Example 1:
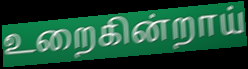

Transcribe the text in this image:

உறைகின்றாய்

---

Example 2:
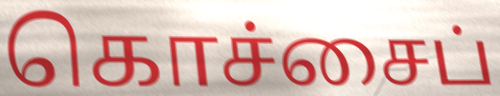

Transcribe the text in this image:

கொச்சைப்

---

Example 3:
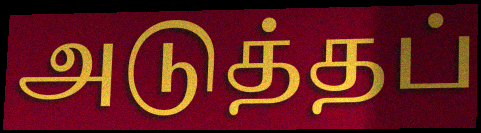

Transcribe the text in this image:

அடுத்தப்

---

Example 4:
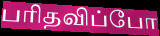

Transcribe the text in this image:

பரிதவிப்போ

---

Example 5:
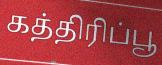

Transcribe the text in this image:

கத்திரிப்பூ